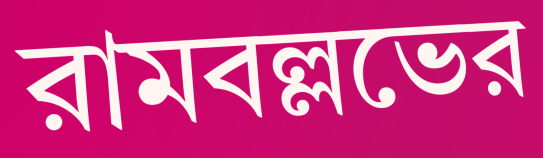
রামবল্লভের